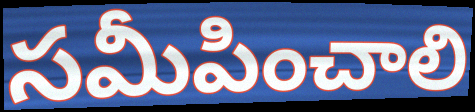
సమీపించాలి